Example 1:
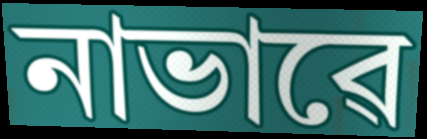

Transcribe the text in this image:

নাভাৱে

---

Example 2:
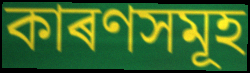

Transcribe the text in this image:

কাৰণসমূহ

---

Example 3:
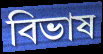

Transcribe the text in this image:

বিভাষ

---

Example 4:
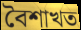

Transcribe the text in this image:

বৈশাখত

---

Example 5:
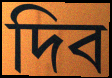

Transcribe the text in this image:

দিব